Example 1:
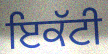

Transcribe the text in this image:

ਇਕੱਟੀ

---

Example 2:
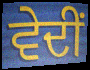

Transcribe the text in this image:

ਵੇਦੀਂ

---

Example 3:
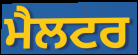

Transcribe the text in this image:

ਮੈਲਟਰ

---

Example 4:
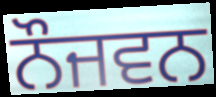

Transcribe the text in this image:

ਨੌਜਵਨ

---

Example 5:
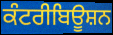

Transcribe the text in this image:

ਕੰਟਰੀਬਿਊਸ਼ਨ